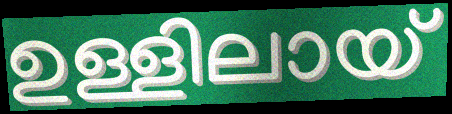
ഉള്ളിലായ്